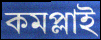
কমপ্লাই